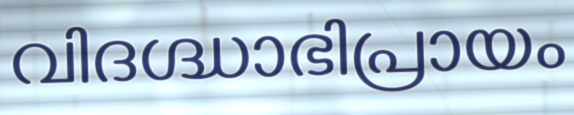
വിദഗ്ദ്ധാഭിപ്രായം